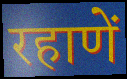
रहाणें